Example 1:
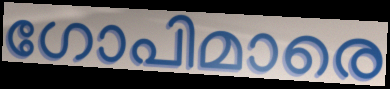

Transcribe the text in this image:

ഗോപിമാരെ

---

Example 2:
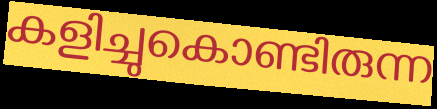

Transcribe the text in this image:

കളിച്ചുകൊണ്ടിരുന്ന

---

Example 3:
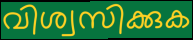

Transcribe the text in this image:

വിശ്വസിക്കുക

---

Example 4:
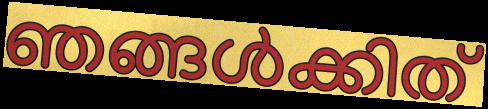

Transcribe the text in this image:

ഞങ്ങൾക്കിത്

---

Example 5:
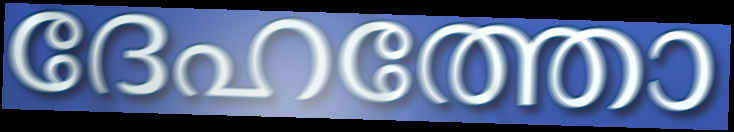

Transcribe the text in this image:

ദേഹത്തോ